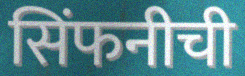
सिंफनीची